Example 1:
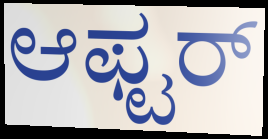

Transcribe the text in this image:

ಆಫ್ಟರ್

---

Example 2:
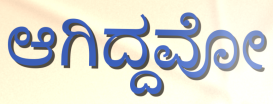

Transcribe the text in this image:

ಆಗಿದ್ದವೋ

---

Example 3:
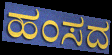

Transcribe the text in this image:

ಹಂಸದ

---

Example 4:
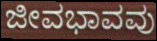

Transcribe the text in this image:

ಜೀವಭಾವವು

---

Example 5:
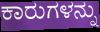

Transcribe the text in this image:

ಕಾರುಗಳನ್ನು